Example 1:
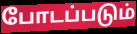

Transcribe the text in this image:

போடப்படும்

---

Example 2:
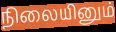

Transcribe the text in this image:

நிலையினும்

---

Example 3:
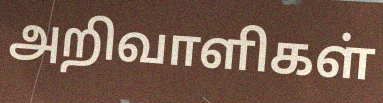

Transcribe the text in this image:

அறிவாளிகள்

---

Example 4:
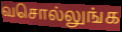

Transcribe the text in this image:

வசொல்லுங்க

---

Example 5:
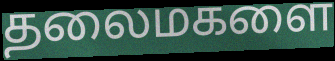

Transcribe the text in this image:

தலைமகளை